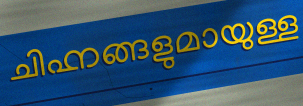
ചിഹ്നങ്ങളുമായുള്ള